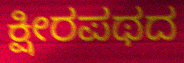
ಕ್ಷೀರಪಥದ